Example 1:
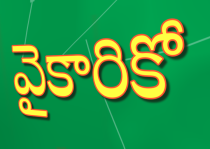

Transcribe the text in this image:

వైకారికో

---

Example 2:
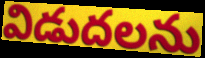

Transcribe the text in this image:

విడుదలను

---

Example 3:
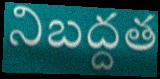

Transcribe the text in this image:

నిబద్దత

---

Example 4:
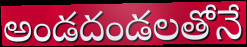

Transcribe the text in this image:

అండదండలతోనే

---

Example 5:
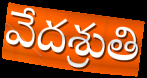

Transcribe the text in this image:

వేదశ్రుతి